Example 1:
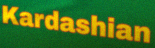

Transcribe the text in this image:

Kardashian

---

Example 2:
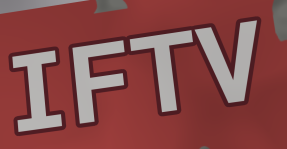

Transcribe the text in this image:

IFTV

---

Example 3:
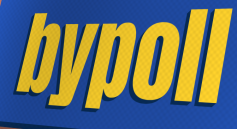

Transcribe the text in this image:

bypoll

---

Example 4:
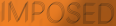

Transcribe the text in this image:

IMPOSED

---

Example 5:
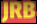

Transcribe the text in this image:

JRB